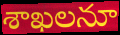
శాఖలనూ